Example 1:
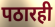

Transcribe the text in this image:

पठारही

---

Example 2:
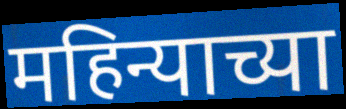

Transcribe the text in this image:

महिन्याच्या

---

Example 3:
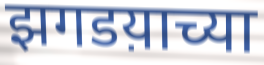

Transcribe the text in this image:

झगडय़ाच्या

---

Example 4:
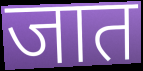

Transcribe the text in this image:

जात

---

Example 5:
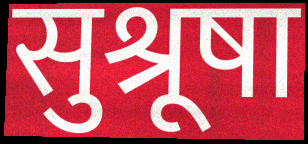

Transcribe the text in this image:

सुश्रूषा